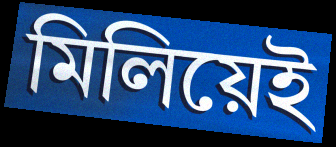
মিলিয়েই